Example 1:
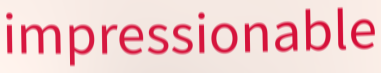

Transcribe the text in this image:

impressionable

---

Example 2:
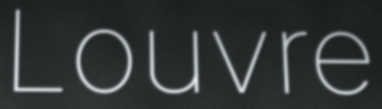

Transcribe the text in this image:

Louvre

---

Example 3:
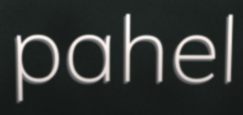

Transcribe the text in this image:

pahel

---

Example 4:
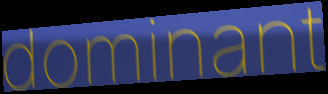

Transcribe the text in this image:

dominant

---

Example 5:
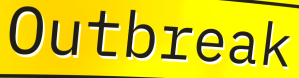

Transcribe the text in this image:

Outbreak